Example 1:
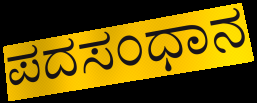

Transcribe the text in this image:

ಪದಸಂಧಾನ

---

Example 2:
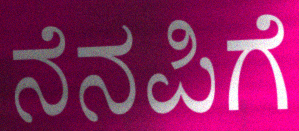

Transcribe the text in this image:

ನೆನಪಿಗೆ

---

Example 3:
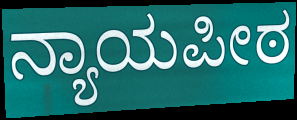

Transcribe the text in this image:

ನ್ಯಾಯಪೀಠ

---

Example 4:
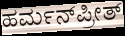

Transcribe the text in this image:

ಹರ್ಮನ್‌ಪ್ರೀತ್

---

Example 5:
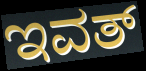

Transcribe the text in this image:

ಇವತ್